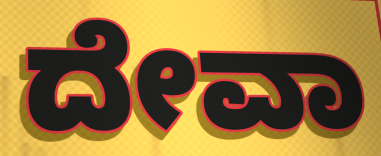
ದೇವಾ